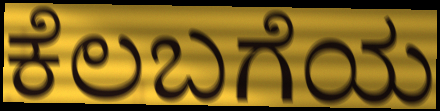
ಕೆಲಬಗೆಯ